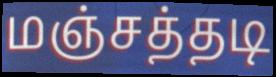
மஞ்சத்தடி